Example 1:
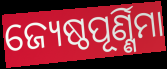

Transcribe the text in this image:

ଜ୍ୟେଷ୍ଠପୂର୍ଣ୍ଣିମା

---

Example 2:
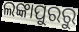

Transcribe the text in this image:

ଲଙ୍କାପୁରରୁ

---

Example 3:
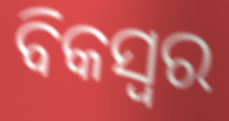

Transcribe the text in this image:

ବିକସ୍ୱର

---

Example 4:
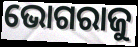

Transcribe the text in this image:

ଭୋଗରାଜୁ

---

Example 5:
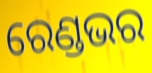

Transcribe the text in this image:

ରେଣ୍ଡଭର